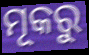
ମୂକରୁ